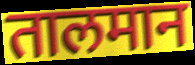
तालमान